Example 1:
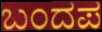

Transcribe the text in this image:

ಬಂದಪ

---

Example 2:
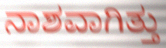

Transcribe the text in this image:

ನಾಶವಾಗಿತ್ತು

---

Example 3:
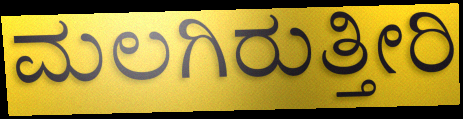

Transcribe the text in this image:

ಮಲಗಿರುತ್ತೀರಿ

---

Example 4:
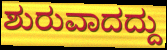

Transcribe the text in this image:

ಶುರುವಾದದ್ದು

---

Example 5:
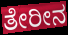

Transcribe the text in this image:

ತೇರೀನ